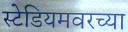
स्टेडियमवरच्या